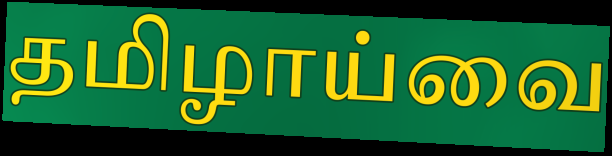
தமிழாய்வை